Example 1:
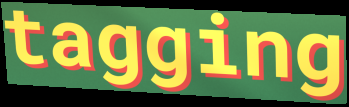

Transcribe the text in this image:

tagging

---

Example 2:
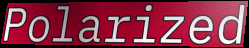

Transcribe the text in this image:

Polarized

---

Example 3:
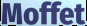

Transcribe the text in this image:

Moffet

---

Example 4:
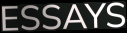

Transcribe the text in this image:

ESSAYS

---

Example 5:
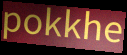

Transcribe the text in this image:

pokkhe